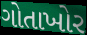
ગોતાખોર